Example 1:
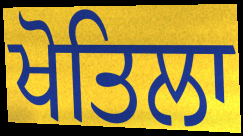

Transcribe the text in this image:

ਖੋਤਿਲਾ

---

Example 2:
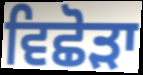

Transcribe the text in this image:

ਵਿਛੋੜਾ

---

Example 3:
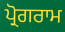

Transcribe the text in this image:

ਪ੍ਰੋਗਰਾਮ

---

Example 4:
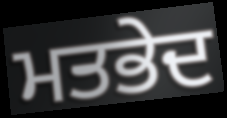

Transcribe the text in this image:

ਮਤਭੇਦ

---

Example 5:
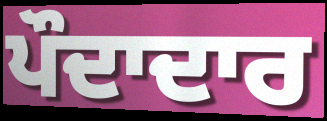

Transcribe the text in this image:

ਪੌਦਾਦਾਰ